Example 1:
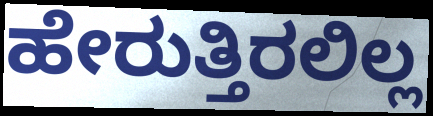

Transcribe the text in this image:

ಹೇರುತ್ತಿರಲಿಲ್ಲ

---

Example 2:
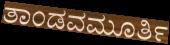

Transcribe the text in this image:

ತಾಂಡವಮೂರ್ತಿ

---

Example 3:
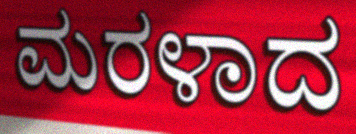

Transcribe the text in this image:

ಮರಳಾದ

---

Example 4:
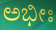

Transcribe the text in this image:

ಅಭೀಃ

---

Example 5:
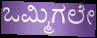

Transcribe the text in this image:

ಒಮ್ಮಿಗಲೇ